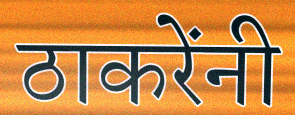
ठाकरेंनी